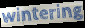
wintering